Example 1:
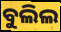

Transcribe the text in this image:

ବୁଲିଲ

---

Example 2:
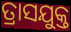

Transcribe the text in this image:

ତ୍ରାସଯୁକ୍ତ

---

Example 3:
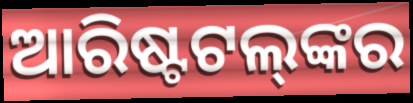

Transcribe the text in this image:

ଆରିଷ୍ଟଟଲ୍‌ଙ୍କର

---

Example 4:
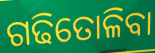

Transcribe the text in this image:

ଗଢିତୋଳିବା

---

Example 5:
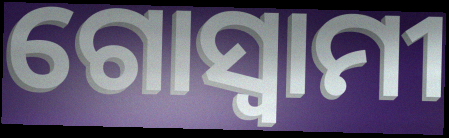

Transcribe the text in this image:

ଗୋସ୍ୱାମୀ